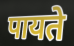
पायते